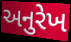
અનુરેખ